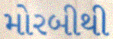
મોરબીથી